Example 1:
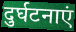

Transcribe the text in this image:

दुर्घटनाएं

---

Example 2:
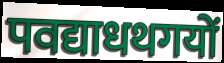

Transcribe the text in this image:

पवद्याधथगयों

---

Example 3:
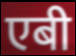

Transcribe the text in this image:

एबी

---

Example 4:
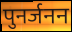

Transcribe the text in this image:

पुनर्जनन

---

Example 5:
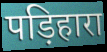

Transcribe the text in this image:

पड़िहारा